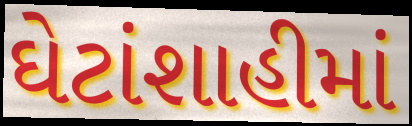
ઘેટાંશાહીમાં